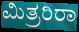
ಮಿತ್ರರಿರಾ